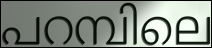
പറമ്പിലെ